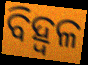
ବିହ୍ଵଳ